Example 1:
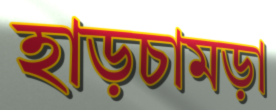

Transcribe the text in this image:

হাড়চামড়া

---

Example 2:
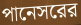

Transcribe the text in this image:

পানেসরের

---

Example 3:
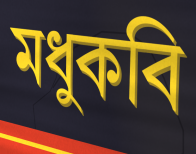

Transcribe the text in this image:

মধুকবি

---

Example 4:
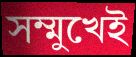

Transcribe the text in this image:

সম্মুখেই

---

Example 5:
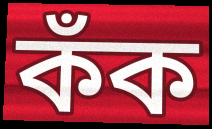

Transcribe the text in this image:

কঁক